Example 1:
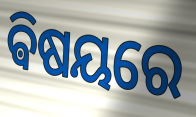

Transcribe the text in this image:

ଵିଷୟରେ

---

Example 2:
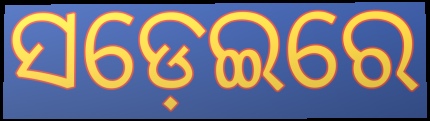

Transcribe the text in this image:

ସଡ଼େଇରେ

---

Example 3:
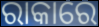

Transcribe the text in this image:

ରାକାରେ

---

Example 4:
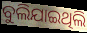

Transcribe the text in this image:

ବୁଲିଯାଇଥିଲି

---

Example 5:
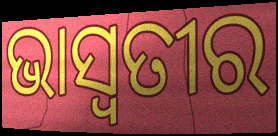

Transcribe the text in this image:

ଭାସ୍ଵତୀର